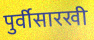
पुर्वीसारखी